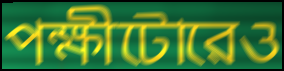
পক্ষীটোৱেও